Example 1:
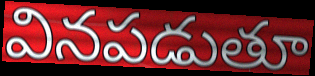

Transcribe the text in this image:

వినపడుతూ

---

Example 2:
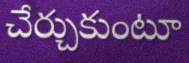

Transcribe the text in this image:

చేర్చుకుంటూ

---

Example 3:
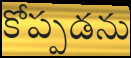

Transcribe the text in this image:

కోప్పడను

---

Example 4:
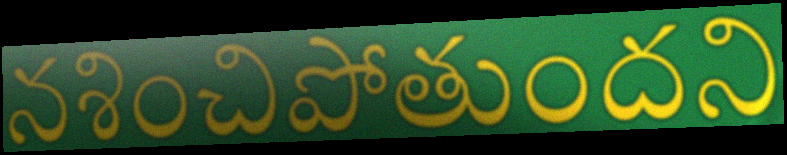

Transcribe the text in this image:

నశించిపోతుందని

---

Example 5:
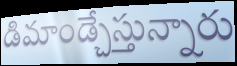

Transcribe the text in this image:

డిమాండ్చేస్తున్నారు